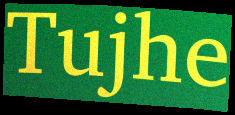
Tujhe